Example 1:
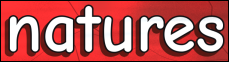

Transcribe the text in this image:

natures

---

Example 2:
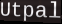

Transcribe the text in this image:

Utpal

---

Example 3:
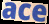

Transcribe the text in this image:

ace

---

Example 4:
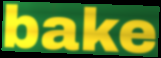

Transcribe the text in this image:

bake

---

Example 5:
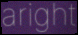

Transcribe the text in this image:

aright